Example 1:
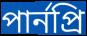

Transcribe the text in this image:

পার্নপ্রি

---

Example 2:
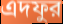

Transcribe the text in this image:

এদফুর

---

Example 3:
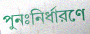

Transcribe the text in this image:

পুনঃনির্ধারণে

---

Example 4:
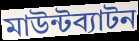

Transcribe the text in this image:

মাউন্টব্যাটন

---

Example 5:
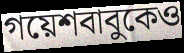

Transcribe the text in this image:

গয়েশবাবুকেও